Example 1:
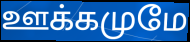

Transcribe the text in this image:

ஊக்கமுமே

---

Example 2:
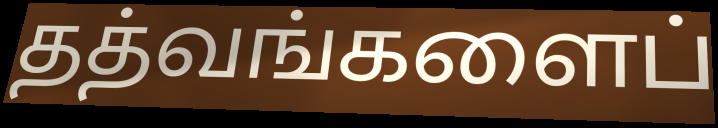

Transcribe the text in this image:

தத்வங்களைப்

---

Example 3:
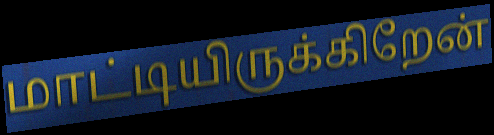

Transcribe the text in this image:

மாட்டியிருக்கிறேன்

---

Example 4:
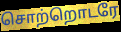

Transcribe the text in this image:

சொற்றொடரே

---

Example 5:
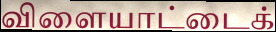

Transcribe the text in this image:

விளையாட்டைக்